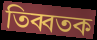
তিব্বতক